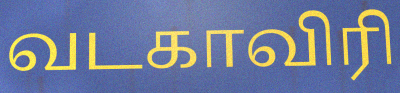
வடகாவிரி